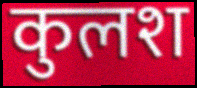
कुलश